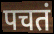
पचतं